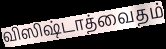
விஸிஷ்டாத்வைதம்